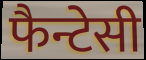
फैन्टेसी